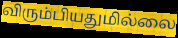
விரும்பியதுமில்லை